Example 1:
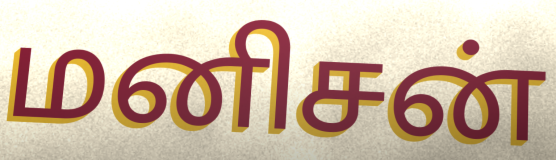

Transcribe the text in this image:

மனிசன்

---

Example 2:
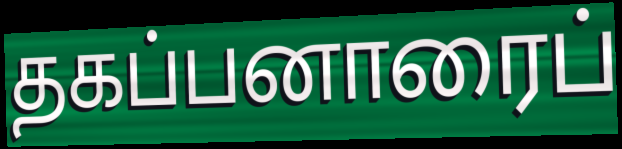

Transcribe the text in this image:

தகப்பனாரைப்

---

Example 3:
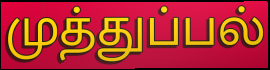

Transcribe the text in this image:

முத்துப்பல்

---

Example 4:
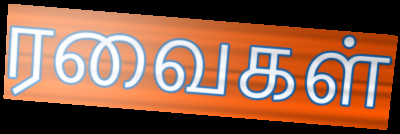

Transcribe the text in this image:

ரவைகள்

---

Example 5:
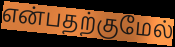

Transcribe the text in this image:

என்பதற்குமேல்